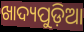
ଖାଦ୍ୟପୁଡ଼ିଆ